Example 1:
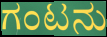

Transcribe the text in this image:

ಗಂಟನು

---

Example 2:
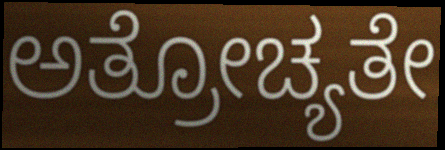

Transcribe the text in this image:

ಅತ್ರೋಚ್ಯತೇ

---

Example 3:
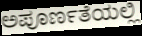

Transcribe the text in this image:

ಅಪೂರ್ಣತೆಯಲ್ಲಿ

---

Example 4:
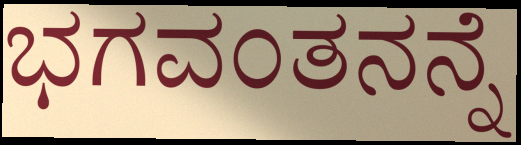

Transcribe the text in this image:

ಭಗವಂತನನ್ನೆ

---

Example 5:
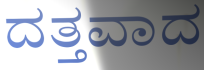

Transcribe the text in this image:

ದತ್ತವಾದ